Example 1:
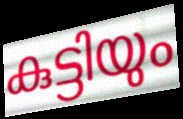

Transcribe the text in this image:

കുട്ടിയും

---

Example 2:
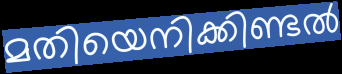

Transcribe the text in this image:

മതിയെനിക്കിണ്ടൽ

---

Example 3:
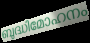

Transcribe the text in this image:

ബുദ്ധിമോഹനം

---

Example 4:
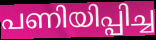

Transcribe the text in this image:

പണിയിപ്പിച്ച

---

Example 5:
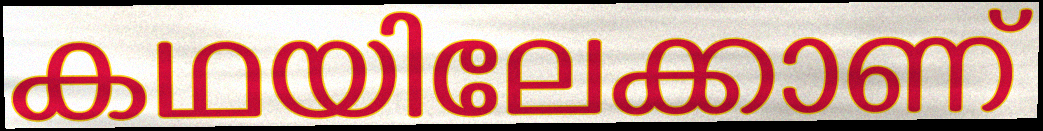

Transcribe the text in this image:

കഥയിലേക്കാണ്